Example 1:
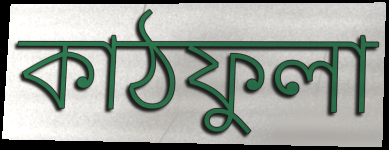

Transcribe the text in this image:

কাঠফুলা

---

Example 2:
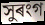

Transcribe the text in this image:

সুৰংগ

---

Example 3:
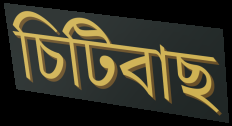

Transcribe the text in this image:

চিটিবাছ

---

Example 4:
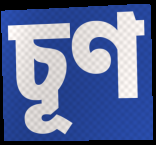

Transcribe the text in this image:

চূণ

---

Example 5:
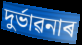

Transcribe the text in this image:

দুৰ্ভাৱনাৰ